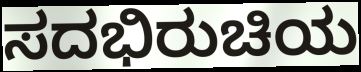
ಸದಭಿರುಚಿಯ